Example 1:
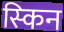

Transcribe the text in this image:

स्‍किन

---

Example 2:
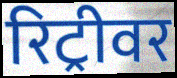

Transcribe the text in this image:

रिट्रीवर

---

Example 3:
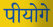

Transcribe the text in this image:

पीयोगे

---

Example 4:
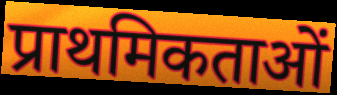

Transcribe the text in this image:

प्राथमिकताओं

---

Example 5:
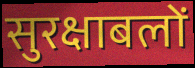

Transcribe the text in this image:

सुरक्षाबलों